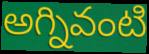
అగ్నివంటి